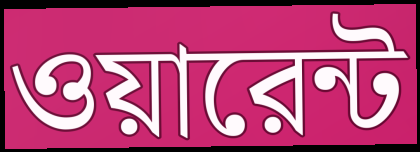
ওয়ারেন্ট